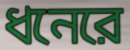
ধনেরে